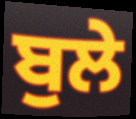
ਬੁਲੇ